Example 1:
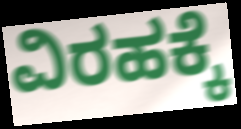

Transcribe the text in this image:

ವಿರಹಕ್ಕೆ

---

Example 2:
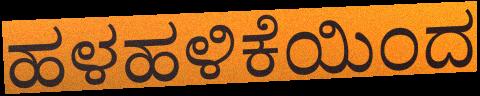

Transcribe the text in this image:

ಹಳಹಳಿಕೆಯಿಂದ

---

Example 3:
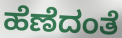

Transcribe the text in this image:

ಹೆಣೆದಂತೆ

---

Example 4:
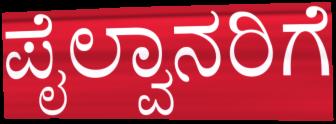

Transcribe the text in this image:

ಪೈಲ್ವಾನರಿಗೆ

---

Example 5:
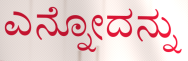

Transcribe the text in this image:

ಎನ್ನೋದನ್ನು